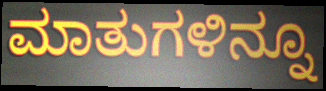
ಮಾತುಗಳಿನ್ನೂ